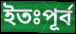
ইতঃপূর্ব